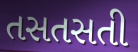
તસતસતી